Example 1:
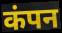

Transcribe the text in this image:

कंपन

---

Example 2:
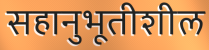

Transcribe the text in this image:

सहानुभूतीशील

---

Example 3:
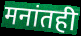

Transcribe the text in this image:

मनांतही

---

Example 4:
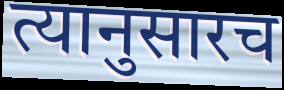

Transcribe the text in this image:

त्यानुसारच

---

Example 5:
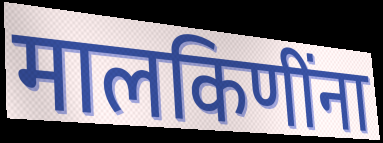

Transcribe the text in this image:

मालकिणींना